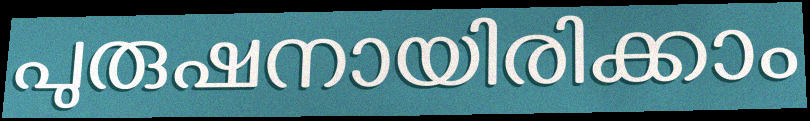
പുരുഷനായിരിക്കാം